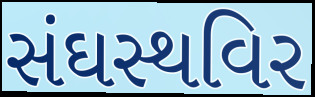
સંઘસ્થવિર